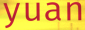
yuan